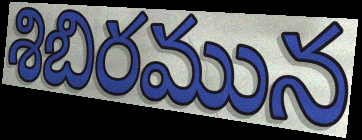
శిబిరమున